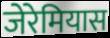
जेरेमियास